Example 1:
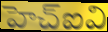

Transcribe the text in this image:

హెచ్ఐవి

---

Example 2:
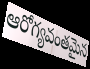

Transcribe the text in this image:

ఆరోగ్యవంతమైన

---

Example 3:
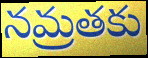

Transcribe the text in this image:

నమ్రతకు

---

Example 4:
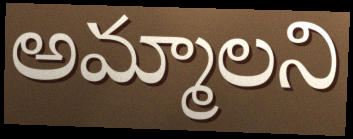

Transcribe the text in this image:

అమ్మాలని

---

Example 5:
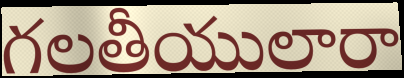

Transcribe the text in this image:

గలతీయులారా